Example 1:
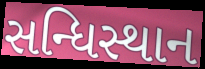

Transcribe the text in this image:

સન્ધિસ્થાન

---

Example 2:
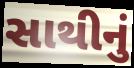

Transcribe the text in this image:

સાથીનું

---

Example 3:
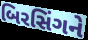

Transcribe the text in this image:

બિરસિંગને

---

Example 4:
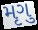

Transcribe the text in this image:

મૃગુ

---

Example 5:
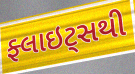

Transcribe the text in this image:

ફ્લાઇટ્સથી